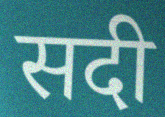
सदी